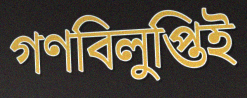
গণবিলুপ্তিই